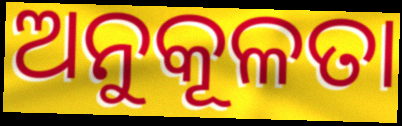
ଅନୁକୂଳତା